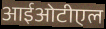
आईओटीएल